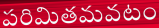
పరిమితమవటం